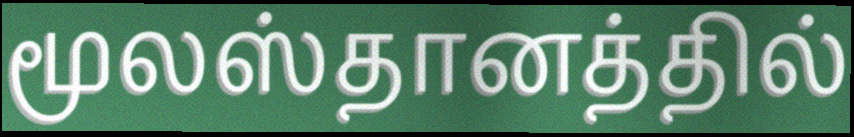
மூலஸ்தானத்தில்